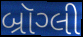
બ્રૉગ્લી